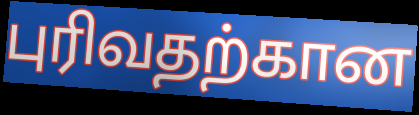
புரிவதற்கான